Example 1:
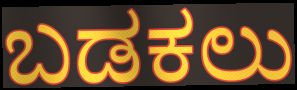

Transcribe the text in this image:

ಬಡಕಲು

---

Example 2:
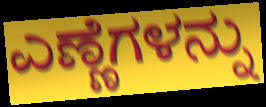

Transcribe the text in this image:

ಎಣ್ಣೆಗಳನ್ನು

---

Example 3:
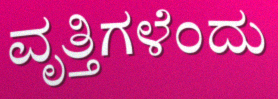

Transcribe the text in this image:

ವೃತ್ತಿಗಳೆಂದು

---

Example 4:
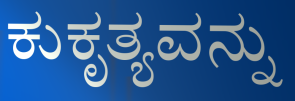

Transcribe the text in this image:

ಕುಕೃತ್ಯವನ್ನು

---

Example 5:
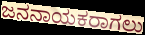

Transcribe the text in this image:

ಜನನಾಯಕರಾಗಲು